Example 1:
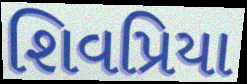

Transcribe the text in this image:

શિવપ્રિયા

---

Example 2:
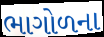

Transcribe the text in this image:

ભાગોળના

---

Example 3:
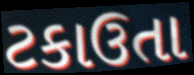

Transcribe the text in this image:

ટકાઉતા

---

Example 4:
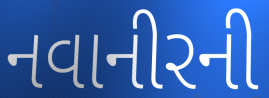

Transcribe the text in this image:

નવાનીરની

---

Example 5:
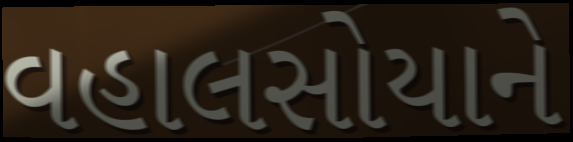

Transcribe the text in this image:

વહાલસોયાને